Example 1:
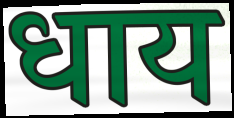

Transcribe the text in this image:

धाय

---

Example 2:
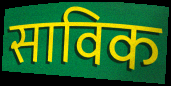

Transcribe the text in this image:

साविक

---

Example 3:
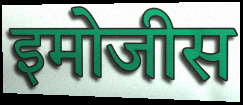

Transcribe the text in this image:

इमोजीस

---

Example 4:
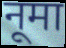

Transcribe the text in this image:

नूमा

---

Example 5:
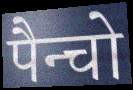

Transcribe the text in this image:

पैन्चो